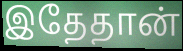
இதேதான்